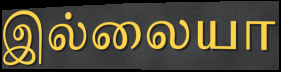
இல்லையா